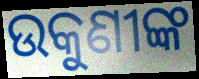
ଉକୁଣୀଙ୍କ